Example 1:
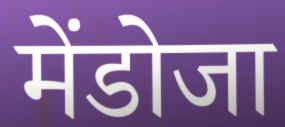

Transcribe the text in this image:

मेंडोजा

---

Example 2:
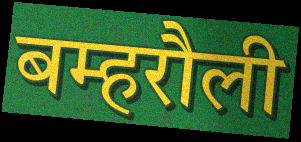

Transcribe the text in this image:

बम्हरौली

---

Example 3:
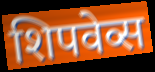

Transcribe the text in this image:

शिपवेव्स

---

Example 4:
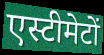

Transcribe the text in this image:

एस्टीमेटों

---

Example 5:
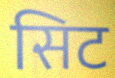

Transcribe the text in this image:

सिट